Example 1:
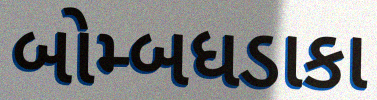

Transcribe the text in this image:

બોમ્બધડાકા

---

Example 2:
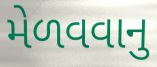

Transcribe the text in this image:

મેળવવાનુ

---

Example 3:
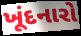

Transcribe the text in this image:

ખૂંદનારો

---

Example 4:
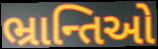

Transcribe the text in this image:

ભ્રાન્તિઓ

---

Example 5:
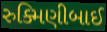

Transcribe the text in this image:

રુક્મિણીબાઈ